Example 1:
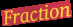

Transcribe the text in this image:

Fraction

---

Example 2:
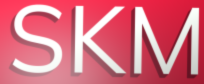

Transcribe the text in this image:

SKM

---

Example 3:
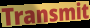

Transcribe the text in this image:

Transmit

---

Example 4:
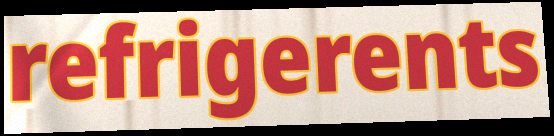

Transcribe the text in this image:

refrigerents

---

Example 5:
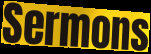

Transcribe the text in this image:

Sermons